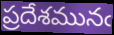
ప్రదేశమునఁ